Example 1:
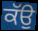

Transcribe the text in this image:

ਕੱਉ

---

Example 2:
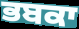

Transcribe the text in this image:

ਭਬਕਾ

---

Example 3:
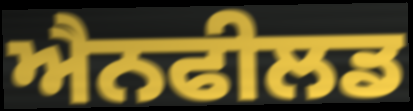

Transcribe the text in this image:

ਐਨਫੀਲਡ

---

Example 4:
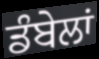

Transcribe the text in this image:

ਡੰਬੇਲਾਂ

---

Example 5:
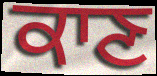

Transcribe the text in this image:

ਕਾਣ